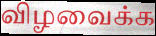
விழவைக்க